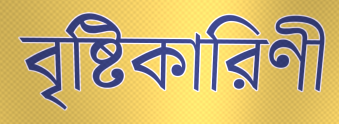
বৃষ্টিকারিণী